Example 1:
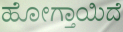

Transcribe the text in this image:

ಹೋಗ್ತಾಯಿದೆ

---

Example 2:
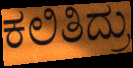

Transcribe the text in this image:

ಕಲಿತಿದ್ರು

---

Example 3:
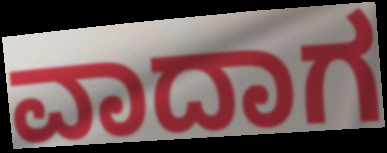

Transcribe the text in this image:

ವಾದಾಗ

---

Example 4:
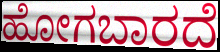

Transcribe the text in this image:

ಹೋಗಬಾರದೆ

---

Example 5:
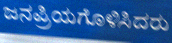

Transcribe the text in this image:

ಜನಪ್ರಿಯಗೊಳಿಸಿದರು